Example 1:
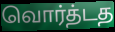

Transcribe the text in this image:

வொர்த்டத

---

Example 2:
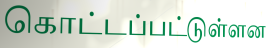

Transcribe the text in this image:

கொட்டப்பட்டுள்ளன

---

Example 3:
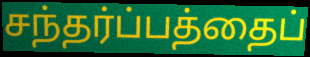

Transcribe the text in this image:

சந்தர்ப்பத்தைப்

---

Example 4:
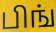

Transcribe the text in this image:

பிங்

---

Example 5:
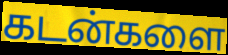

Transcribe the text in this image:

கடன்களை